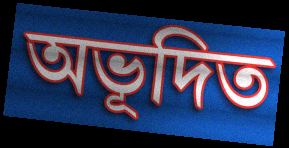
অভূদিত